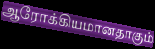
ஆரோக்கியமானதாகும்